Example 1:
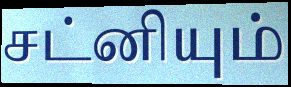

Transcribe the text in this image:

சட்னியும்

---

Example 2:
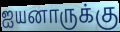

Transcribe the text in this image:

ஐயனாருக்கு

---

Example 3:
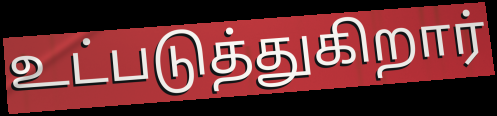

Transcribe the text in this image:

உட்படுத்துகிறார்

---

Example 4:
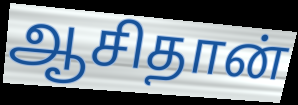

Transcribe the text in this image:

ஆசிதான்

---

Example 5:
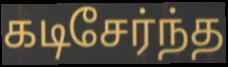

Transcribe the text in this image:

கடிசேர்ந்த